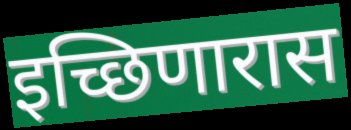
इच्छिणारास